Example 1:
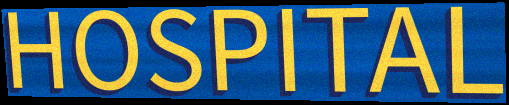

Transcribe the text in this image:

HOSPITAL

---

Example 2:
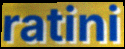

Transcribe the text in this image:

ratini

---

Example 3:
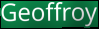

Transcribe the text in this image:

Geoffroy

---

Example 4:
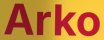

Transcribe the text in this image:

Arko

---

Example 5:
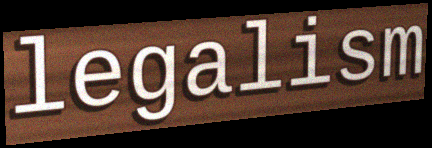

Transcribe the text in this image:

legalism